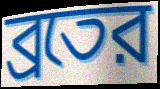
ব্রতের